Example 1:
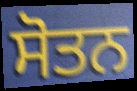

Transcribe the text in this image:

ਸੋਤਨ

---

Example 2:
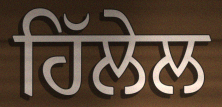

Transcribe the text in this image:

ਹਿੱਲੇਲ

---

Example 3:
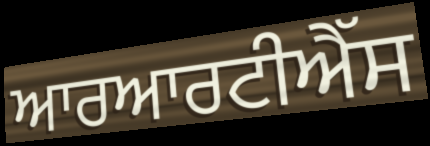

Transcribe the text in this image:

ਆਰਆਰਟੀਐੱਸ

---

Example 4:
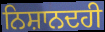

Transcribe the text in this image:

ਨਿਸ਼ਾਨਦਹੀ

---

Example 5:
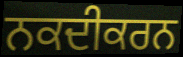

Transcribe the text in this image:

ਨਕਦੀਕਰਨ